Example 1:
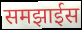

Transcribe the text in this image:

समझाईस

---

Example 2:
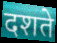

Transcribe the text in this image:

दशते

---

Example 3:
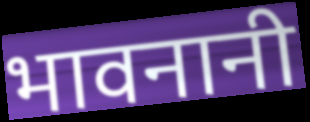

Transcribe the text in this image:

भावनानी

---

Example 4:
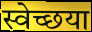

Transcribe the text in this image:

स्वेच्छया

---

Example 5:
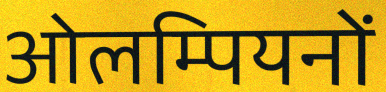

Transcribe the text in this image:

ओलम्पियनों